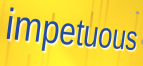
impetuous